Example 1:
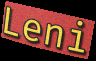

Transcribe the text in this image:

Leni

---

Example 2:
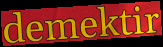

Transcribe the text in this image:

demektir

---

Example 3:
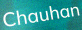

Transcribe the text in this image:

Chauhan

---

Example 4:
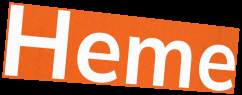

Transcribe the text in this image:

Heme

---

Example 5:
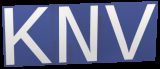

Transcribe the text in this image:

KNV